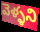
వెళ్ళని